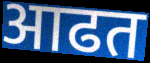
आढत